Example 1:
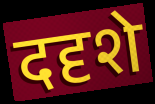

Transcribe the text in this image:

ददृशे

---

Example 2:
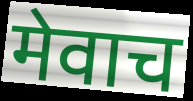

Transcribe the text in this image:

मेवाच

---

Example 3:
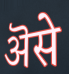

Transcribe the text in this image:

ऄसे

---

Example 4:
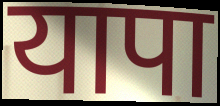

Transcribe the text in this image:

यापा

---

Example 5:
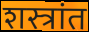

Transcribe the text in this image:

शस्त्रांत